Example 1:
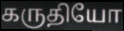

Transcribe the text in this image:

கருதியோ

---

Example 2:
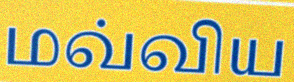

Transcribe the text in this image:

மவ்விய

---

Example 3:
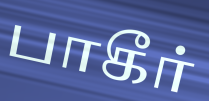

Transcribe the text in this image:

பாகீர்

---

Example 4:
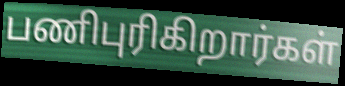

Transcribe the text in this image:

பணிபுரிகிறார்கள்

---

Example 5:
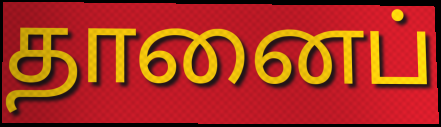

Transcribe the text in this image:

தானைப்